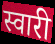
स्वारी